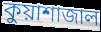
কুয়াশাজাল